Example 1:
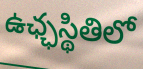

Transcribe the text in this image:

ఉఛ్ఛస్థితిలో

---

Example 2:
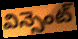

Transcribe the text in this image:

విన్సెంట్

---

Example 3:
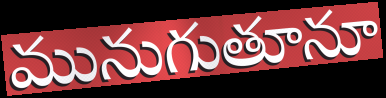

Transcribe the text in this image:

మునుగుతూనూ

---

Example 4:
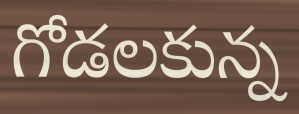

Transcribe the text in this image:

గోడలకున్న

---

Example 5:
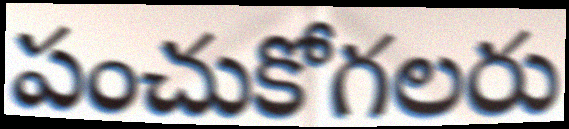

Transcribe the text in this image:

పంచుకోగలరు